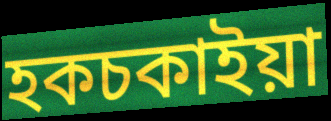
হকচকাইয়া